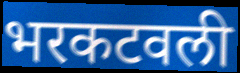
भरकटवली